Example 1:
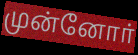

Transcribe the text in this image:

முன்னோர்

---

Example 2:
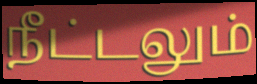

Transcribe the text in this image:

நீட்டலும்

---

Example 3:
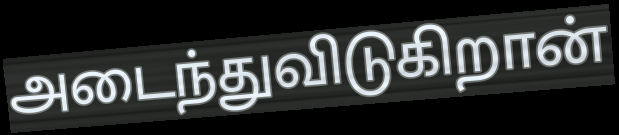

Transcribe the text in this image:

அடைந்துவிடுகிறான்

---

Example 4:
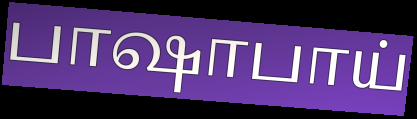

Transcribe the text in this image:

பாஷாபாய்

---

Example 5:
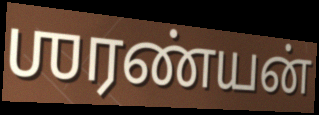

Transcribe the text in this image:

ஶரண்யன்